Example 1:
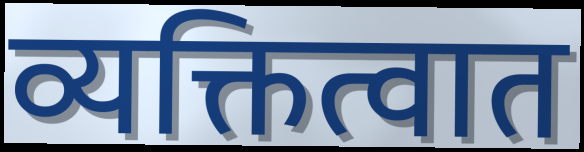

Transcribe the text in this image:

व्यक्तित्वात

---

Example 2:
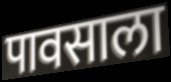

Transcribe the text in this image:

पावसाला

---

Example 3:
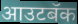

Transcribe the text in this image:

आउटबॅक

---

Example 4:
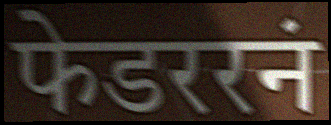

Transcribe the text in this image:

फेडररनं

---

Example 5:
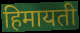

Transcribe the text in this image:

हिमायती